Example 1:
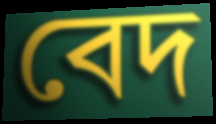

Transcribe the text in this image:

বেদ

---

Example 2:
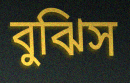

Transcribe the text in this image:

বুঝিস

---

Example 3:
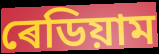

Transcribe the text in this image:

ৰেডিয়াম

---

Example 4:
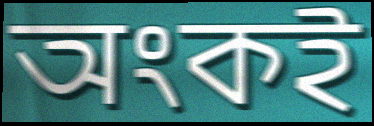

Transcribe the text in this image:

অংকই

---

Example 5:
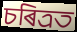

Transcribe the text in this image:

চৰিত্ৰত